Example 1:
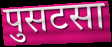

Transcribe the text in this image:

पुसटसा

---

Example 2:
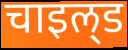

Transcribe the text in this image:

चाइल्ड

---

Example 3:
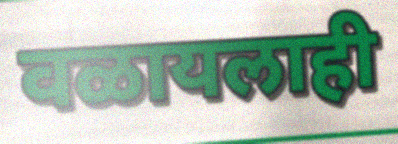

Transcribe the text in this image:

वळायलाही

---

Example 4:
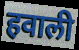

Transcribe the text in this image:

हवाली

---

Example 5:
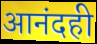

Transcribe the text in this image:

आनंदही